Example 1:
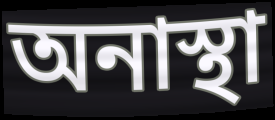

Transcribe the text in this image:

অনাস্থা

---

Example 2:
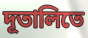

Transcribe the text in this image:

দূতালিতে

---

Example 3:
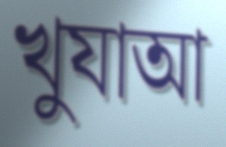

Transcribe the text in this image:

খুযাআ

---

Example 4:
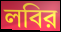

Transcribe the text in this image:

লবির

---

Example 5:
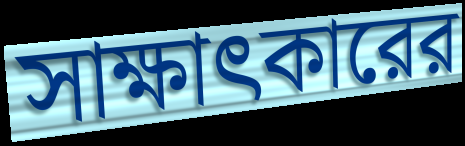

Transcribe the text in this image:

সাক্ষাৎকারের